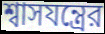
শ্বাসযন্ত্রের